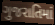
ગુજરાતિમાં